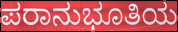
ಪರಾನುಭೂತಿಯ